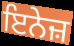
ਇਨੇਜ਼